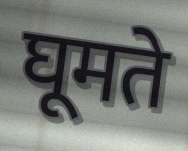
घूमते